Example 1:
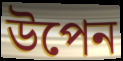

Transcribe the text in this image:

উপেন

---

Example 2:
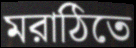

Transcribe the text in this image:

মরাঠিতে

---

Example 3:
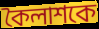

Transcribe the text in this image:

কৈলাশকে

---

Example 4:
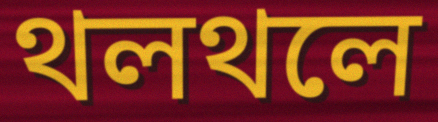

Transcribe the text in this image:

থলথলে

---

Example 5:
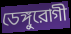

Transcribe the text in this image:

ডেঙ্গুরোগী